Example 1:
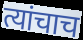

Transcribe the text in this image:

त्यांचाच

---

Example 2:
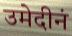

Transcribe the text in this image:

उमेदीनं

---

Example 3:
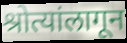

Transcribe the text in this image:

श्रोत्यांलागून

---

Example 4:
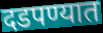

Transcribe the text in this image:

दडपण्यात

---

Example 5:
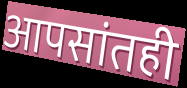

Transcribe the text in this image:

आपसांतही